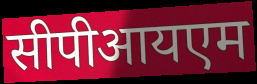
सीपीआयएम